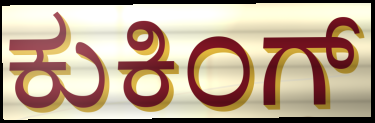
ಕುಕಿಂಗ್